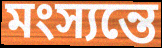
মংস্যন্তে